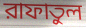
রাফাতুল